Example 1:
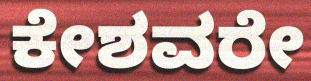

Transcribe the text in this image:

ಕೇಶವರೇ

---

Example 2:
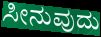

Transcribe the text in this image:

ಸೀನುವುದು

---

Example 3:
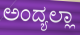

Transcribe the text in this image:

ಅಂದ್ಯಲ್ಲಾ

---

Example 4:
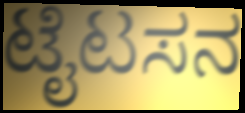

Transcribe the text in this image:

ಟೈಟಸನ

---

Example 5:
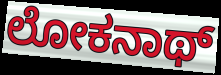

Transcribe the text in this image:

ಲೋಕನಾಥ್